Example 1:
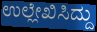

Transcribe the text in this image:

ಉಲ್ಲೇಖಿಸಿದ್ದು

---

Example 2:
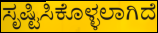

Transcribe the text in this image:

ಸೃಷ್ಟಿಸಿಕೊಳ್ಳಲಾಗಿದೆ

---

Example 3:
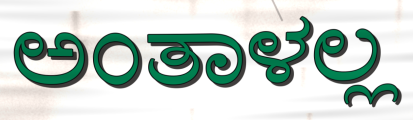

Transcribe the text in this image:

ಅಂತಾಳಲ್ಲ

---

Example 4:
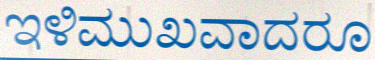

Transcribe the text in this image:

ಇಳಿಮುಖವಾದರೂ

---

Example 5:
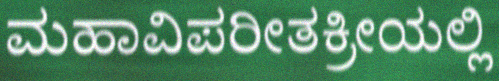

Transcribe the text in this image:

ಮಹಾವಿಪರೀತಕ್ರೀಯಲ್ಲಿ